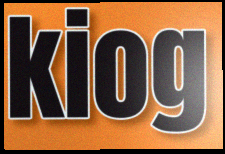
kiog